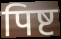
पिष्ट